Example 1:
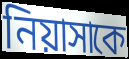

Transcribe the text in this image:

নিয়াসাকে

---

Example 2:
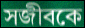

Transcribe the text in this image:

সজীবকে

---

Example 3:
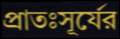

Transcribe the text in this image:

প্রাতঃসূর্যের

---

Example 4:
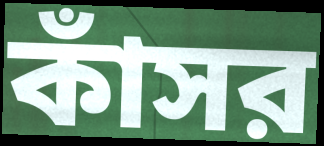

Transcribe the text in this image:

কাঁসর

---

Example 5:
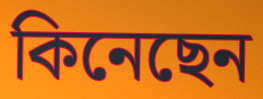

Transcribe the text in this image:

কিনেছেন